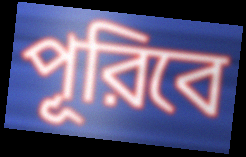
পূরিবে